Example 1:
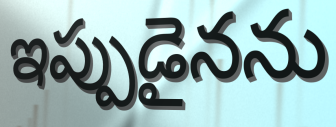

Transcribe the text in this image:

ఇప్పుడైనను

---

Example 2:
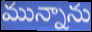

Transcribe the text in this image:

మున్నాను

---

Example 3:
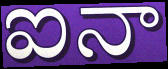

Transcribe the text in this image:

ఐనా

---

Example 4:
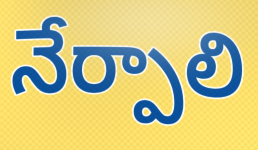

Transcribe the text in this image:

నేర్పాలి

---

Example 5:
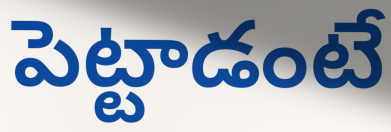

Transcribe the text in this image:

పెట్టాడంటే